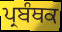
ਪ੍ਰਬੰਥਕ